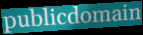
publicdomain